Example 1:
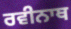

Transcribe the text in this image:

ਰਵੀਨਾਥ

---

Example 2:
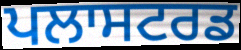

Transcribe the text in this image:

ਪਲਾਸਟਰਡ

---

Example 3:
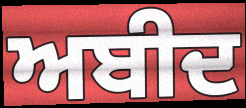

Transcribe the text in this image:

ਅਬੀਦ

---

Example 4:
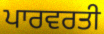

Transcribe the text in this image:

ਪਾਰਵਰਤੀ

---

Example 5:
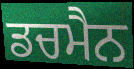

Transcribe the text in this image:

ਡਚਮੈਨ